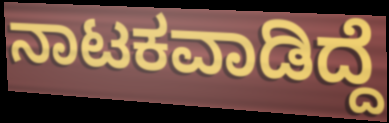
ನಾಟಕವಾಡಿದ್ದೆ